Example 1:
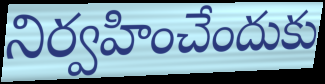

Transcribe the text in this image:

నిర్వహించేందుకు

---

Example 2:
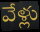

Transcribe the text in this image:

వేళ్లు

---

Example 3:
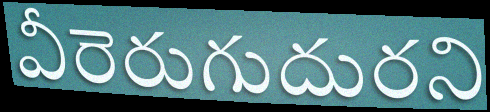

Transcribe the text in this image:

వీరెరుగుదురని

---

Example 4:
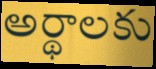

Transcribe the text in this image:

అర్థాలకు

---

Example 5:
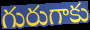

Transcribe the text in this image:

గురుగాకు